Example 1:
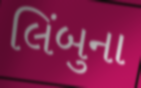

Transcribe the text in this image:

લિંબુના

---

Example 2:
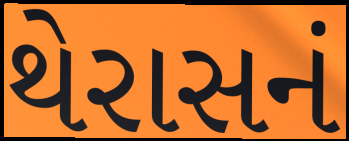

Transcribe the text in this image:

થેરાસનં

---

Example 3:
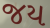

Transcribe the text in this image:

જય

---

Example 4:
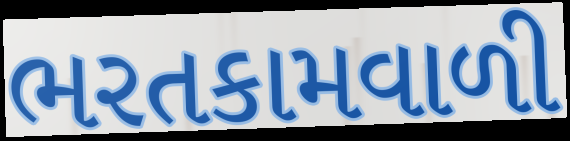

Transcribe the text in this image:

ભરતકામવાળી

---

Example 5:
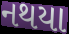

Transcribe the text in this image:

નથયા